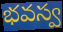
భవస్వ